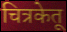
चित्रकेतू